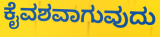
ಕೈವಶವಾಗುವುದು